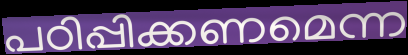
പഠിപ്പിക്കണമെന്ന